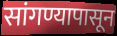
सांगण्यापासून